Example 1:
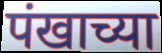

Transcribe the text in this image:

पंखाच्या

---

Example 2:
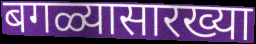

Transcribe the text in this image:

बगळ्यासारख्या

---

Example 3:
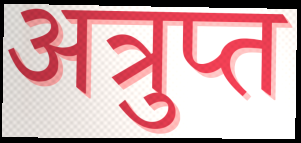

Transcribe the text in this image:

अत्रुप्त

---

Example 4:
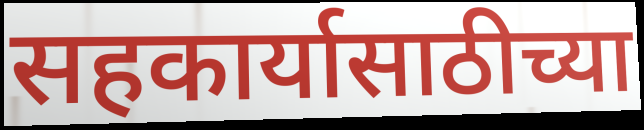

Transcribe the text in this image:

सहकार्यासाठीच्या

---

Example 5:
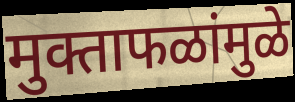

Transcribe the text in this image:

मुक्ताफळांमुळे